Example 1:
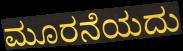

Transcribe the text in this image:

ಮೂರನೆಯದು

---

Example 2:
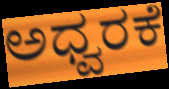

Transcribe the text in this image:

ಅಧ್ವರಕೆ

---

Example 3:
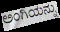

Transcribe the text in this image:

ಅಂಗಿಯನ್ನು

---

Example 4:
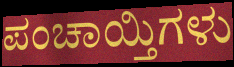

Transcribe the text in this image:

ಪಂಚಾಯ್ತಿಗಳು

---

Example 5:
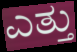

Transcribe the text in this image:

ಎತ್ತು